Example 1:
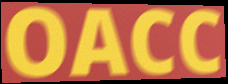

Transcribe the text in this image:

OACC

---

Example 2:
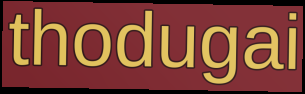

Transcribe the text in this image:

thodugai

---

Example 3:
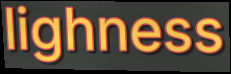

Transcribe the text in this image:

lighness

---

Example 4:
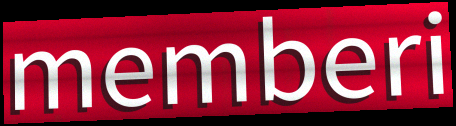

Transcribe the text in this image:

memberi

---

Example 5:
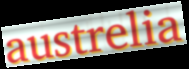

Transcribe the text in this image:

austrelia